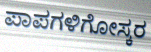
ಪಾಪಗಳಿಗೋಸ್ಕರ